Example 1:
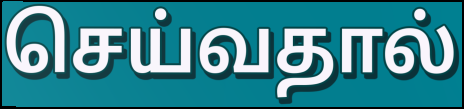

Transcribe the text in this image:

செய்வதால்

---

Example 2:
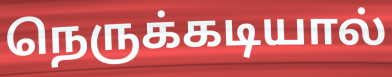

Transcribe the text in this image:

நெருக்கடியால்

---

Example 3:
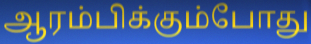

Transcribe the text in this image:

ஆரம்பிக்கும்போது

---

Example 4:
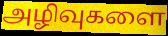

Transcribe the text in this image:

அழிவுகளை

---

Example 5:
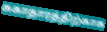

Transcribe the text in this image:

சுகாதாரத்திற்காக